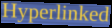
Hyperlinked